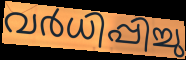
വർധിപ്പിച്ചു